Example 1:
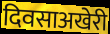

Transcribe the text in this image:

दिवसाअखेरी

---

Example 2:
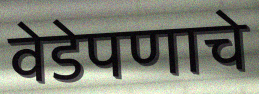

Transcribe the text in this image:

वेडेपणाचे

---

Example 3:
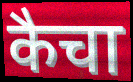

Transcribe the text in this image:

कैचा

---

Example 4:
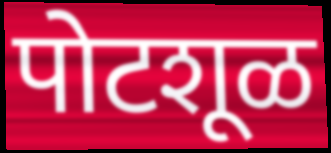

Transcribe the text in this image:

पोटशूळ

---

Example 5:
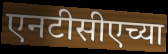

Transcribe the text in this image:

एनटीसीएच्या